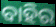
ବାହିର